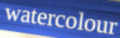
watercolour